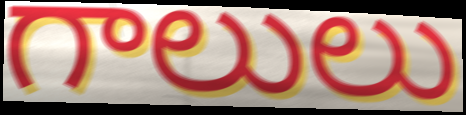
గాలులు